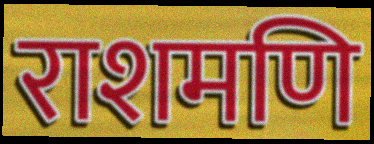
राशमणि